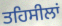
ਤਹਿਸੀਲਾਂ